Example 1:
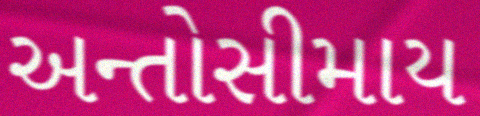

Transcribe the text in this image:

અન્તોસીમાય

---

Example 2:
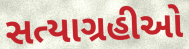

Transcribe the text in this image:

સત્યાગ્રહીઓ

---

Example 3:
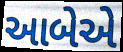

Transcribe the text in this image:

આબેએ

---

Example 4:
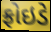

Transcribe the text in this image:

ફ્રોઇડે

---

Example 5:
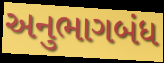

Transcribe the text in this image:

અનુભાગબંધ